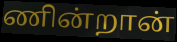
ணின்றான்